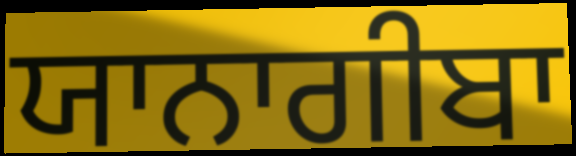
ਯਾਨਾਗੀਬਾ